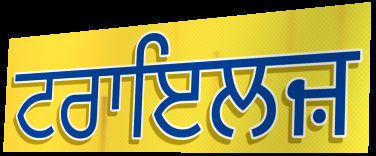
ਟਰਾਇਲਜ਼